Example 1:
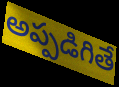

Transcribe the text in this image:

అప్పడిగితే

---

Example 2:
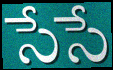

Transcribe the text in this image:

సేసే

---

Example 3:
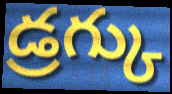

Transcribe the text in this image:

డ్రగ్కు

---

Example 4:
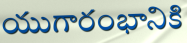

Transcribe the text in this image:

యుగారంభానికి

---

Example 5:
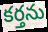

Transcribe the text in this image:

కర్తను